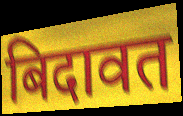
बिदावत